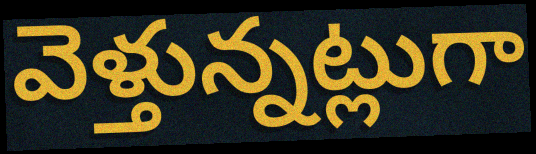
వెళ్తున్నట్లుగా